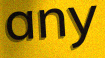
any